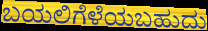
ಬಯಲಿಗೆಳೆಯಬಹುದು